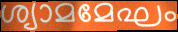
ശ്യാമമേഘം